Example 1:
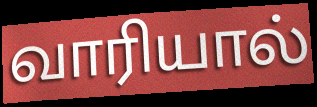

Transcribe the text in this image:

வாரியால்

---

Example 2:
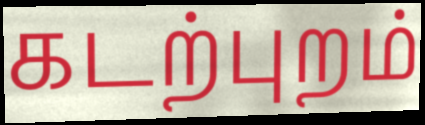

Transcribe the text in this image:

கடற்புறம்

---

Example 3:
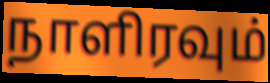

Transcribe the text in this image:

நாளிரவும்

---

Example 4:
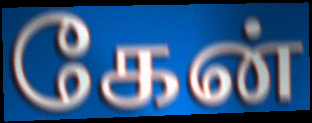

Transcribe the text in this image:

கேன்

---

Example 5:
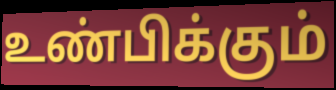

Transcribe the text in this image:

உண்பிக்கும்